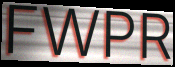
FWPR